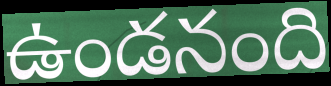
ఉండనంది